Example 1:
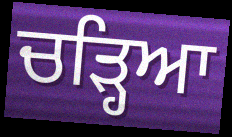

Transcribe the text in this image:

ਚਡ਼੍ਹਿਆ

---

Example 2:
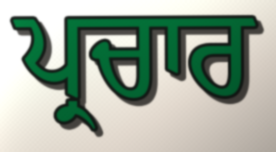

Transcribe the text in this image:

ਪ੍ਰਚਾਰ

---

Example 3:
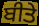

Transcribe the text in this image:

ਬੀਤੇ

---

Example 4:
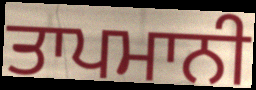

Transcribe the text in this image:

ਤਾਪਮਾਨੀ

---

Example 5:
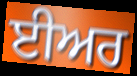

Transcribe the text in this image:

ਈਅਰ